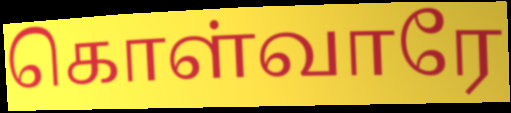
கொள்வாரே